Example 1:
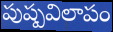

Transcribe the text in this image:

పుష్పవిలాపం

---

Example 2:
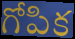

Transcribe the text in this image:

గోపిక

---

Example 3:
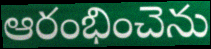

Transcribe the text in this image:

ఆరంభించెను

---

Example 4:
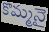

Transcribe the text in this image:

కొమ్మనై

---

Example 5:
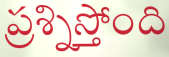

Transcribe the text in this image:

ప్రశ్నిస్తోంది